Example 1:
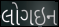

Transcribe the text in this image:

લોગઇન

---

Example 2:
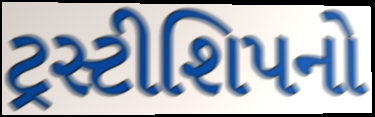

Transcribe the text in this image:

ટ્રસ્ટીશિપનો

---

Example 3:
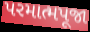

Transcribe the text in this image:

પરમાત્મપૂજા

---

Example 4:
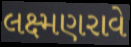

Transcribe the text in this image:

લક્ષ્મણરાવે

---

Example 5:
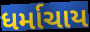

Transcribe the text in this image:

ધર્માચાય